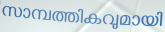
സാമ്പത്തികവുമായി